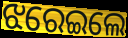
ଝରେଇଲେ